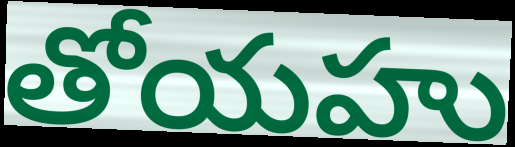
తోయహు